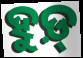
ହୁଡ଼୍